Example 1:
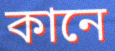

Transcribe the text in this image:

কানে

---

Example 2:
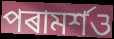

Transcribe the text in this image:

পৰামৰ্শও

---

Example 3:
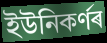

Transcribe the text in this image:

ইউনিকৰ্ণৰ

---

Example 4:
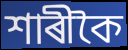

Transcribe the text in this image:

শাৰীকৈ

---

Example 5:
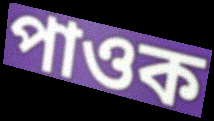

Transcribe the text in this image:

পাওক